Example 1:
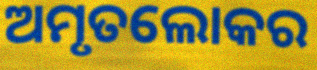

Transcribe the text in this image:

ଅମୃତଲୋକର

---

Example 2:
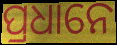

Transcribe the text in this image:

ପ୍ରଧାନେ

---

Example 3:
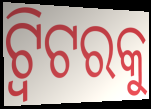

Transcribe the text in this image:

ଟ୍ୱିଟରକୁ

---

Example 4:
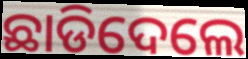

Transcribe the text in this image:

ଛାଡିଦେଲେ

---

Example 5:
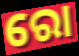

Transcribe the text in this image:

ରୋ